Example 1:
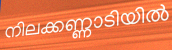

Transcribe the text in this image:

നിലക്കണ്ണാടിയിൽ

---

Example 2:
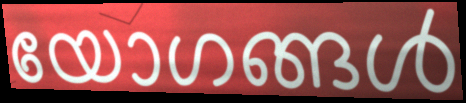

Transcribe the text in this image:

യോഗങ്ങൾ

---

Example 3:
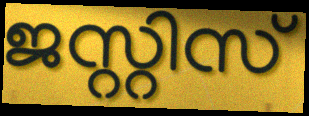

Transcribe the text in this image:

ജസ്റ്റിസ്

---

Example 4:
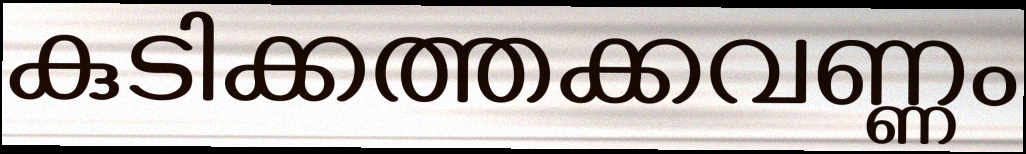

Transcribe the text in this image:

കുടിക്കത്തക്കവണ്ണം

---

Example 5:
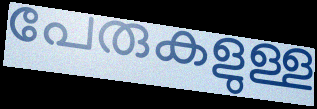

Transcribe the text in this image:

പേരുകളുള്ള